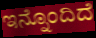
ಇನ್ನೊಂದಿದೆ